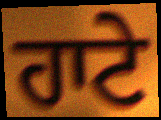
ਹਾਟੇ